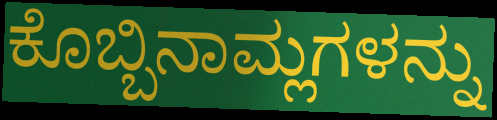
ಕೊಬ್ಬಿನಾಮ್ಲಗಳನ್ನು